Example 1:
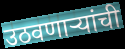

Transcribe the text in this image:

उठवणाऱ्यांची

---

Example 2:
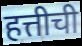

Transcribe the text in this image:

हत्तीची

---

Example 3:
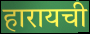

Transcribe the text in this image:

हारायची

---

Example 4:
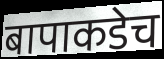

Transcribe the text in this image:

बापाकडेच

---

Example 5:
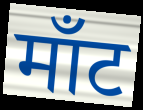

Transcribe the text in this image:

माँट